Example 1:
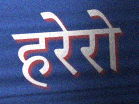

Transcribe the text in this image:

हरेरो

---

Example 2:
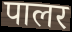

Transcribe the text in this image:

पालर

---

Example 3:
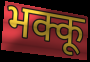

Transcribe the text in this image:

भक्कू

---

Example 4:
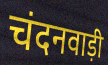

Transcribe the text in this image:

चंदनवाड़ी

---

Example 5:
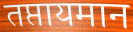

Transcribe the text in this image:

तप्तायमान